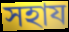
সহায